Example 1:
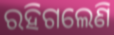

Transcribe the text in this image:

ରହିଗଲେଣି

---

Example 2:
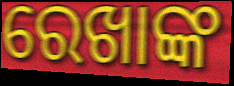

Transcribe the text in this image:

ରେଖାଙ୍କ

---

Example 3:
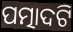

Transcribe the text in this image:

ପତ୍ମାଦଟି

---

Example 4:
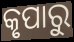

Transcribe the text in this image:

କୃପାରୁ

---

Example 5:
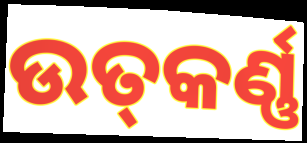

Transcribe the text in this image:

ଉତ୍‍କର୍ଣ୍ଣ